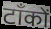
टाँकों